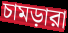
চামড়ারা